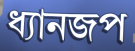
ধ্যানজপ